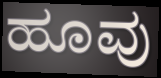
ಹೂವು